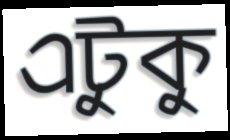
এটুকু